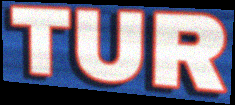
TUR